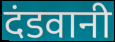
दंडवानी